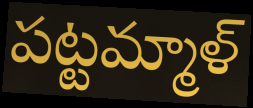
పట్టమ్మాళ్